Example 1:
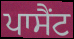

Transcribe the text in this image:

ਪਾਸੈਂਟ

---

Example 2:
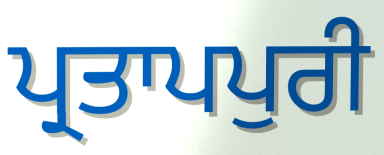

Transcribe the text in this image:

ਪ੍ਰਤਾਪਪੁਰੀ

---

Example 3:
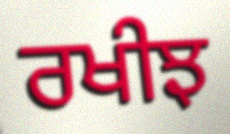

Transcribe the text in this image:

ਰਖੀਝ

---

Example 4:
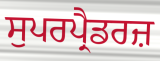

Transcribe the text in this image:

ਸੁਪਰਪ੍ਰੈਡਰਜ਼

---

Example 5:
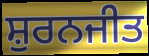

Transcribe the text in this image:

ਸ਼ੁਰਨਜੀਤ